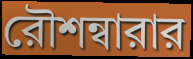
রৌশন্বারার